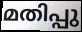
മതിപ്പു